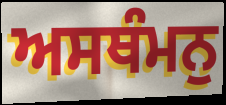
ਅਸਥੰਮਨੁ